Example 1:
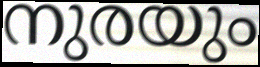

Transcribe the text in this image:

നുരയും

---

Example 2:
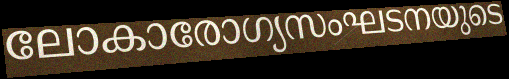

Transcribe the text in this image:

ലോകാരോഗ്യസംഘടനയുടെ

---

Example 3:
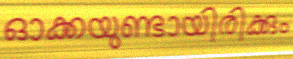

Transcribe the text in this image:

ഓക്കയുണ്ടായിരിക്കും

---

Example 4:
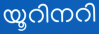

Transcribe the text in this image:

യൂറിനറി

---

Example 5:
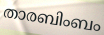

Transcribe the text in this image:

താരബിംബം